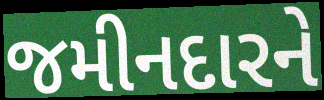
જમીનદારને